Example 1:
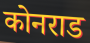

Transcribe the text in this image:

कोनराड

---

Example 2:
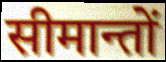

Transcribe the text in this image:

सीमान्तों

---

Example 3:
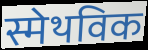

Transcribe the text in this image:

स्मेथविक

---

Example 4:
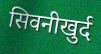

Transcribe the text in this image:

सिवनीखुर्द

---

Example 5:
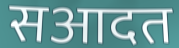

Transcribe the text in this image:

सआदत